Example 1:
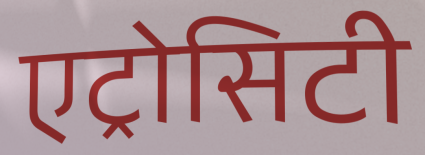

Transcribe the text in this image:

एट्रोसिटी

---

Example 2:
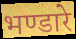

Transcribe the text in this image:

भण्डारे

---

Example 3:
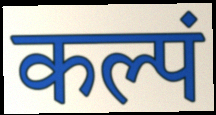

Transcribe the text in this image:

कल्पं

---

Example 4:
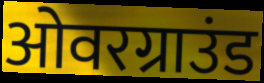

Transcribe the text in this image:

ओवरग्राउंड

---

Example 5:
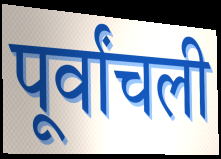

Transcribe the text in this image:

पूर्वांचली